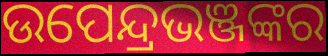
ଉପେନ୍ଦ୍ରଭଞ୍ଜଙ୍କର